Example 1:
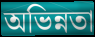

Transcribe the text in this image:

অভিন্নতা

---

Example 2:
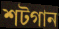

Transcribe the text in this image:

শটগান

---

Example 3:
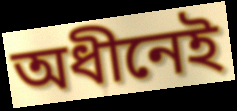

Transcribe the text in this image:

অধীনেই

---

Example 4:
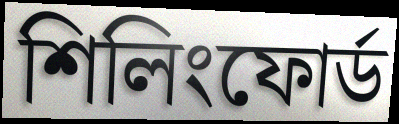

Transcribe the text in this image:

শিলিংফোর্ড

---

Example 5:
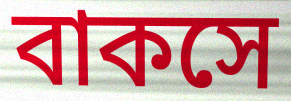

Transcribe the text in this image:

বাকসে